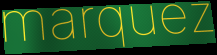
marquez